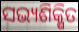
ସଭ୍ୟଶିକ୍ଷିତ